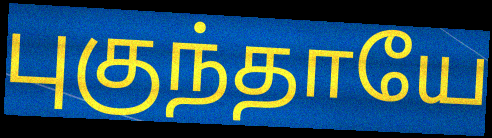
புகுந்தாயே